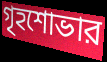
গৃহশোভার